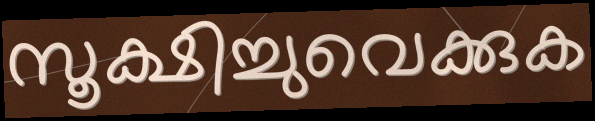
സൂക്ഷിച്ചുവെക്കുക